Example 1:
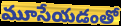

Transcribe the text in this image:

మూసేయడంతో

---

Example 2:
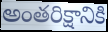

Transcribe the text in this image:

అంతరిక్షానికి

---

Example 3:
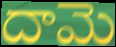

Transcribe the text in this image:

దామె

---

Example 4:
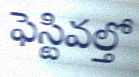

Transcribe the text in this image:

ఫెస్టివల్తో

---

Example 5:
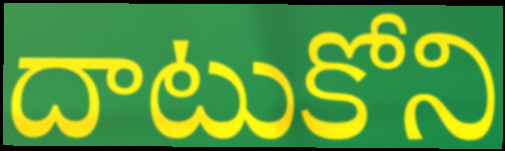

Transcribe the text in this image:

దాటుకోని